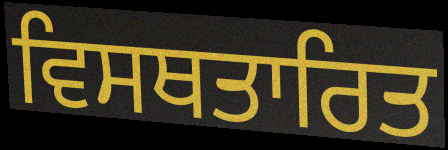
ਵਿਸਥਤਾਰਿਤ